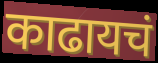
काढायचं